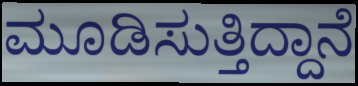
ಮೂಡಿಸುತ್ತಿದ್ದಾನೆ